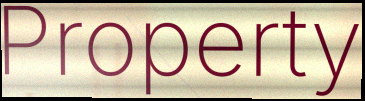
Property